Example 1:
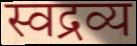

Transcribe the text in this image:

स्वद्रव्य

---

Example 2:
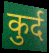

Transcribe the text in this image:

कुर्द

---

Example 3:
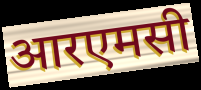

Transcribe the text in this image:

आरएमसी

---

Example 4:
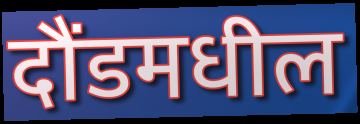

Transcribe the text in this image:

दौंडमधील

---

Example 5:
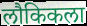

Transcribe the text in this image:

लौकिकला